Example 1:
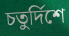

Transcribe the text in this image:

চতুৰ্দিশে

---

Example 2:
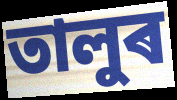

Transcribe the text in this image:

তালুৰ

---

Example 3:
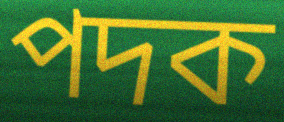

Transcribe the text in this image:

পদক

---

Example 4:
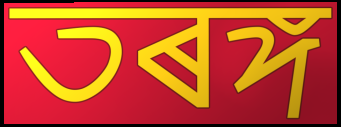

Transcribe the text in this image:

তৰঙ্গ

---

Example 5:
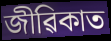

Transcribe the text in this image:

জীৱিকাত